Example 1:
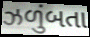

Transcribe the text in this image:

ઝળુંબતા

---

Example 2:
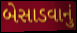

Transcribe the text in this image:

બેસાડવાનું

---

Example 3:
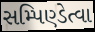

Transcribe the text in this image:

સમ્પિણ્ડેત્વા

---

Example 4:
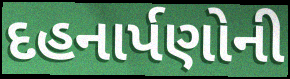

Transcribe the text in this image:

દહનાર્પણોની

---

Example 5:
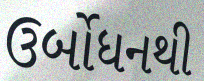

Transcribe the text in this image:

ઉર્બોધનથી